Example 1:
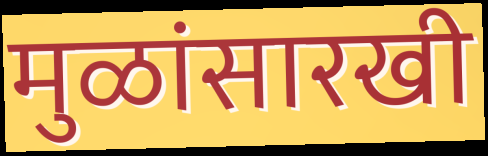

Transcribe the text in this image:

मुळांसारखी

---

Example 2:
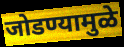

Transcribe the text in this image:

जोडण्यामुळे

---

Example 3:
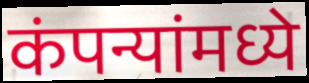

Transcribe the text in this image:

कंपन्यांमध्ये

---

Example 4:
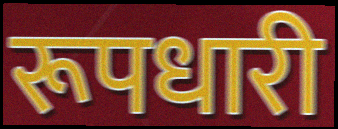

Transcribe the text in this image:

रूपधारी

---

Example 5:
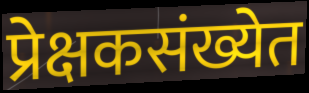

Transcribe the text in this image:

प्रेक्षकसंख्येत